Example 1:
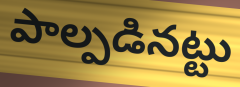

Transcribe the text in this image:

పాల్పడినట్టు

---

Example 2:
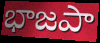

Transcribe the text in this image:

భాజపా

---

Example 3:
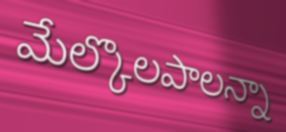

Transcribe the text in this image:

మేల్కొలపాలన్నా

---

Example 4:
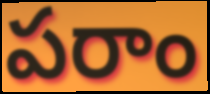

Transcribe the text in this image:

పరాం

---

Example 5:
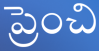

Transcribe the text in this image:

ప్రెంచి